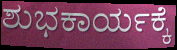
ಶುಭಕಾರ್ಯಕ್ಕೆ